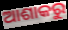
ଆଶାକରୁ